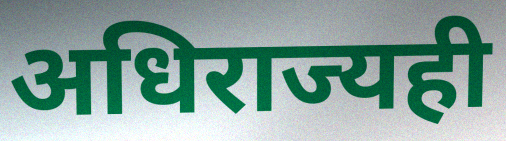
अधिराज्यही